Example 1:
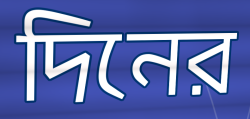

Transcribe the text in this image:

দিনের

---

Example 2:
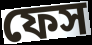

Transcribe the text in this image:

ফেস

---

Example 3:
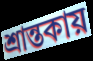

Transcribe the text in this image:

শ্রান্তকায়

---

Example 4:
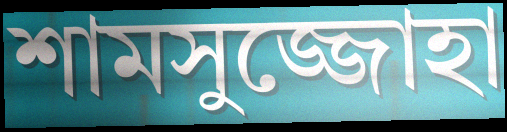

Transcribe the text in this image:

শামসুজ্জোহা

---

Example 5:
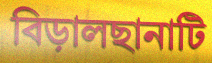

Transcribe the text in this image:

বিড়ালছানাটি